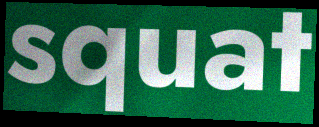
squat